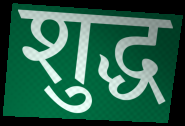
शुद्ध